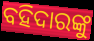
ବହିଦାରଙ୍କୁ